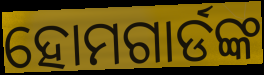
ହୋମଗାର୍ଡଙ୍କ